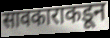
सावकाराकडून